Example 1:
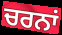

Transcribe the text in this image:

ਚਰਨਾਂ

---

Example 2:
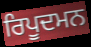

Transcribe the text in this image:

ਰਿਪੂਦਮਨ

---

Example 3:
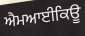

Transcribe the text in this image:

ਐਮਆਈਕਿਊ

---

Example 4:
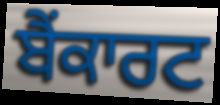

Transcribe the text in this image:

ਬੈਂਕਾਰਟ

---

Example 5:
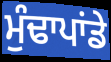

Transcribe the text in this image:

ਮੁੰਢਾਪਾਂਡੇ